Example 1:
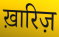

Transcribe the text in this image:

ख़ारिज़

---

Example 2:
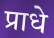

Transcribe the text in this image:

प्राधे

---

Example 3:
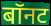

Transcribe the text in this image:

बॉनट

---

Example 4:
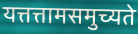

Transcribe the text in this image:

यत्तत्तामसमुच्यते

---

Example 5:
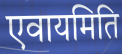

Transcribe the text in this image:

एवायमिति